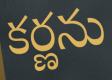
కర్ణను